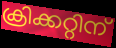
ക്രിക്കറ്റിന്